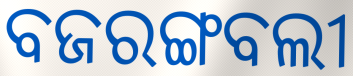
ବଜରଙ୍ଗବଲୀ